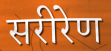
सरीरेण